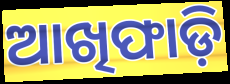
ଆଖିଫାଡ଼ି